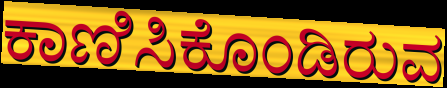
ಕಾಣಿಸಿಕೊಂಡಿರುವ